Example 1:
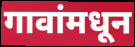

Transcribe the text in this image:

गावांमधून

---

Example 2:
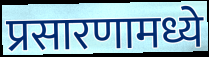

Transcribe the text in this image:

प्रसारणामध्ये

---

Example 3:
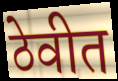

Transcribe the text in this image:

ठेवीत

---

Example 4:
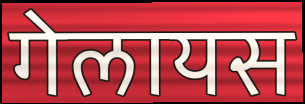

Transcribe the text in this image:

गेलायस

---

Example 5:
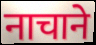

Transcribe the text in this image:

नाचाने